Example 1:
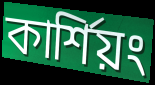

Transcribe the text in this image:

কার্শিয়ং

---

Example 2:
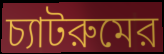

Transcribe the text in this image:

চ্যাটরুমের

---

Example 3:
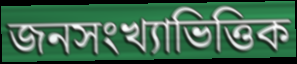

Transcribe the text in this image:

জনসংখ্যাভিত্তিক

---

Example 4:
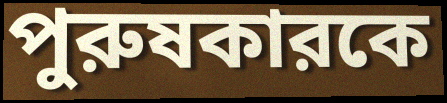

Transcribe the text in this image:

পুরুষকারকে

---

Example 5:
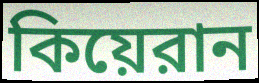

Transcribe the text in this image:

কিয়েরান